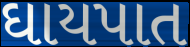
ઘાયપાત